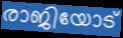
രാജിയോട്